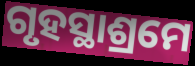
ଗୃହସ୍ଥାଶ୍ରମେ